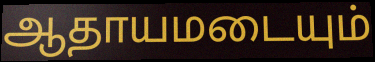
ஆதாயமடையும்